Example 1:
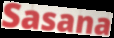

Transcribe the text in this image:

Sasana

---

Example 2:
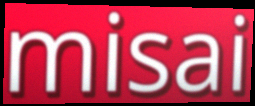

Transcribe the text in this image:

misai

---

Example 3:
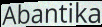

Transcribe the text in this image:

Abantika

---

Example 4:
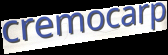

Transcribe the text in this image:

cremocarp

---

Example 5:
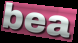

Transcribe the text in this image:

bea